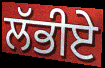
ਲੱਭੀਏ